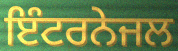
ਇੰਟਰਨੇਜਲ